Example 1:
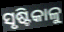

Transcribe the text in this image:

ସୃଷ୍ଟିକାଳୁ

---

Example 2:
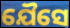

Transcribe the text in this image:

ଯୈସେ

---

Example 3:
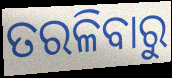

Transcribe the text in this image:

ତରଳିବାରୁ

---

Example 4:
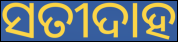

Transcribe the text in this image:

ସତୀଦାହ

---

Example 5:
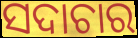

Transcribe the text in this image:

ସଦାଚାର